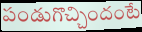
పండుగొచ్చిందంటే